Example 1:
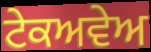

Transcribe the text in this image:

ਟੇਕਅਵੇਅ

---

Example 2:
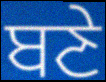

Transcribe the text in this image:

ਬਣੇ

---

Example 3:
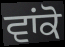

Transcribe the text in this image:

ਵਾਂਕੋ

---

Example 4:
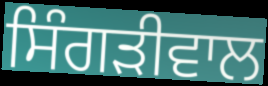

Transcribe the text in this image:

ਸਿੰਗੜੀਵਾਲ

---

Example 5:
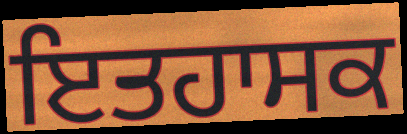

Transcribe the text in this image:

ਇਤਹਾਸਕ